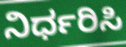
ನಿರ್ಧರಿಸಿ